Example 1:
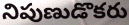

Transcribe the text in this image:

నిపుణుడొకరు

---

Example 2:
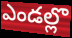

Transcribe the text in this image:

ఎండల్లొ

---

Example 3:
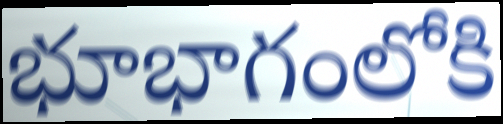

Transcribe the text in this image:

భూభాగంలోకి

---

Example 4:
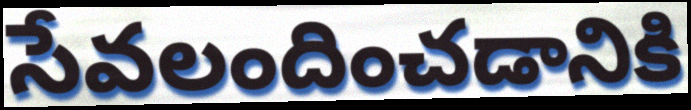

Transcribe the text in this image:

సేవలందించడానికి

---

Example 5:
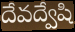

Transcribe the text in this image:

దేవద్వేషి